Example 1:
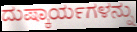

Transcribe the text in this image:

ದುಷ್ಕಾರ್ಯಗಳನ್ನು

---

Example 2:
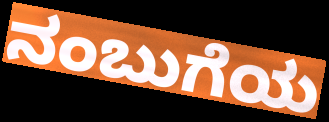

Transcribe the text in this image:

ನಂಬುಗೆಯ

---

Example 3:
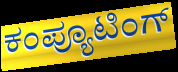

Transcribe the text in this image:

ಕಂಪ್ಯೂಟಿಂಗ್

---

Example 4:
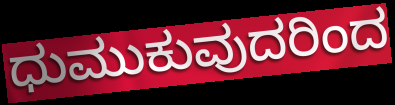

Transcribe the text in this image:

ಧುಮುಕುವುದರಿಂದ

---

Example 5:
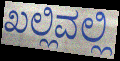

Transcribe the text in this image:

ಖಲ್ಲಿವಲ್ಲಿ